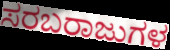
ಸರಬರಾಜುಗಳ